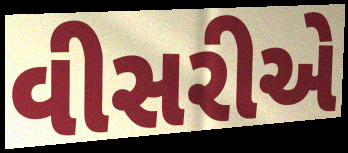
વીસરીએ